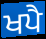
ਖਪੈ